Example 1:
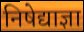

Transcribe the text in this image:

निषेद्याज्ञा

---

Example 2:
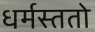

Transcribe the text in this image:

धर्मस्ततो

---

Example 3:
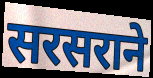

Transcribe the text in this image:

सरसराने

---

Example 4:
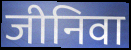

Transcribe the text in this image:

जीनिवा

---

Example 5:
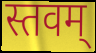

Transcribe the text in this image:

स्तवम्